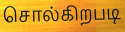
சொல்கிறபடி